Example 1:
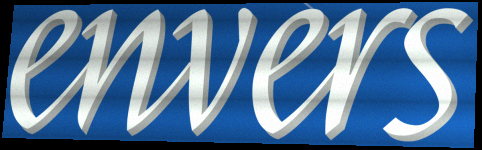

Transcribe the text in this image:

envers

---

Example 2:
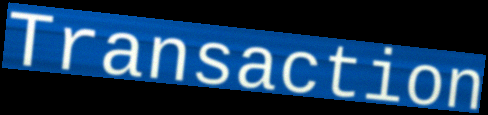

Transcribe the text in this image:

Transaction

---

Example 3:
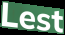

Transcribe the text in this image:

Lest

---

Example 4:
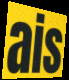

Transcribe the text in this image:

ais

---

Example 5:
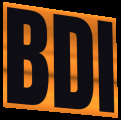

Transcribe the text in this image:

BDI